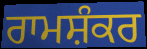
ਰਾਮਸ਼ੰਕਰ